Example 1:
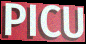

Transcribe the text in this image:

PICU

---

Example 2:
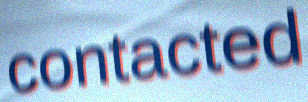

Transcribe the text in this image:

contacted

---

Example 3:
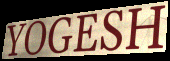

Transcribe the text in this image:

YOGESH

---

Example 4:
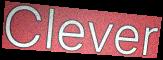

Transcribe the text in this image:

Clever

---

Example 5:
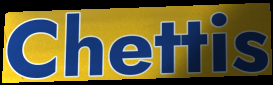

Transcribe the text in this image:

Chettis